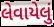
લેવાયેલું